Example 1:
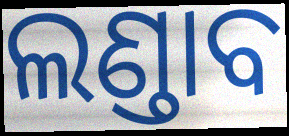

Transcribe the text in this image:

ଲଣ୍ଡାବ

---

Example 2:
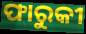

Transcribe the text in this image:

ଫାରୁକୀ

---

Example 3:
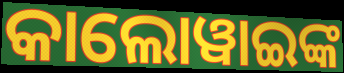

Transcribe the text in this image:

କାଲୋୱାଇଙ୍କ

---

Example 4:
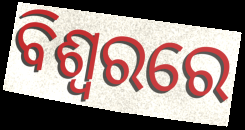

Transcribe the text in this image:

ବିଶ୍ବରରେ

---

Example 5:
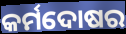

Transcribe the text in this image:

କର୍ମଦୋଷର